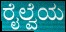
ರೈಲ್ವೆಯ